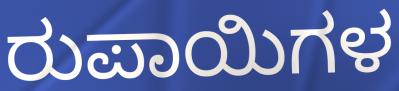
ರುಪಾಯಿಗಳ